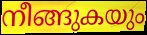
നീങ്ങുകയും